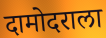
दामोदराला